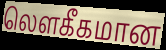
லெளகீகமான